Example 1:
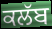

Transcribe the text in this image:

ਕਲੱਬ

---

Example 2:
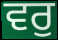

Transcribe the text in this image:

ਵਰੁ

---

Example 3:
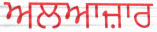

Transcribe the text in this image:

ਅਲਆਜ਼ਾਰ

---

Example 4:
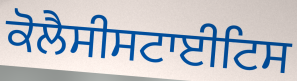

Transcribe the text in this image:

ਕੋਲੈਸੀਸਟਾਈਟਿਸ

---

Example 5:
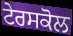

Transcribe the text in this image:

ਟੇਰਸਕੋਲ